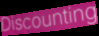
Discounting